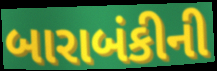
બારાબંકીની